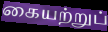
கையற்றுப்